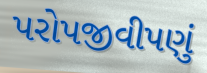
પરોપજીવીપણું